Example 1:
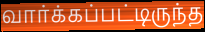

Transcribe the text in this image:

வார்க்கப்பட்டிருந்த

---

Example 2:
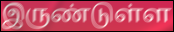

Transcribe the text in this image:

இருண்டுள்ள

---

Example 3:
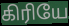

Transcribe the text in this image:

கிரியே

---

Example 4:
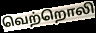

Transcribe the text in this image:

வெற்றொலி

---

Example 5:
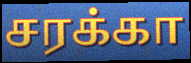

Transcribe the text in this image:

சரக்கா